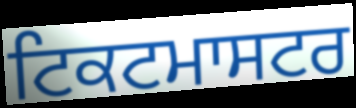
ਟਿਕਟਮਾਸਟਰ